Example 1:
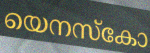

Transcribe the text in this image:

യെനസ്കോ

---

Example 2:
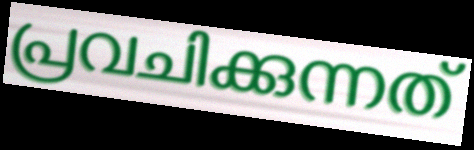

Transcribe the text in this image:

പ്രവചിക്കുന്നത്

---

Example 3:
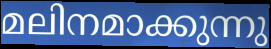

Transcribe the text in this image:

മലിനമാക്കുന്നു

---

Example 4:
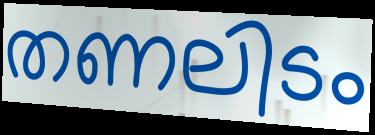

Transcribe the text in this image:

തണലിടം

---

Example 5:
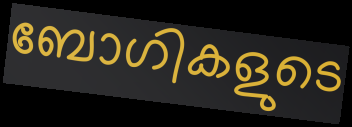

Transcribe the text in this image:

ബോഗികളുടെ